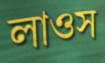
লাওস